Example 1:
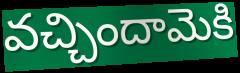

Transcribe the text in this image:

వచ్చిందామెకి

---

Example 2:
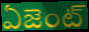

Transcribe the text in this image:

ఏజెంట్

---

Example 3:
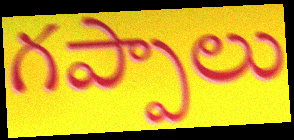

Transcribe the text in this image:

గప్పాలు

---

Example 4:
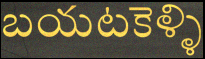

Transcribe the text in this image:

బయటకెళ్ళి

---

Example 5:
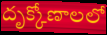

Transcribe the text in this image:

దృక్కోణాలలో